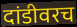
दांडीवरच